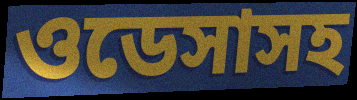
ওডেসাসহ